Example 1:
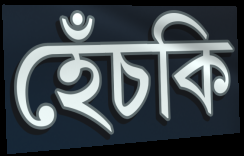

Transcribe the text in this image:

হেঁচকি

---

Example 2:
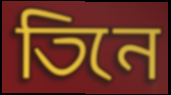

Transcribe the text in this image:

তিনে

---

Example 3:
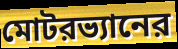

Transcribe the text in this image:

মোটরভ্যানের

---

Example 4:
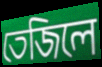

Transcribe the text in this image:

তেজিলে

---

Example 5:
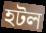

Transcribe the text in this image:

হটল